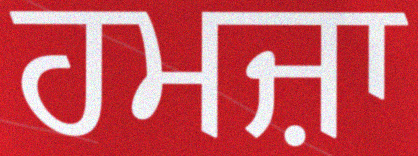
ਹਮਜ਼ਾ